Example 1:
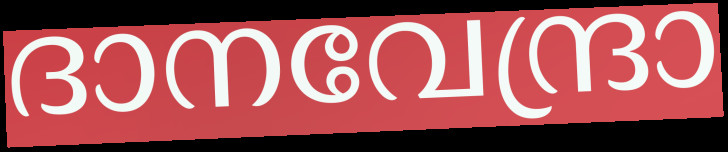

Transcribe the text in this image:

ദാനവേന്ദ്രാ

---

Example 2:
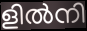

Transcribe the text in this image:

ളിൽനി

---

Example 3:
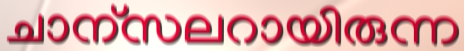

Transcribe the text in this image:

ചാന്സലറായിരുന്ന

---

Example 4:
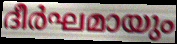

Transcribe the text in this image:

ദീർഘമായും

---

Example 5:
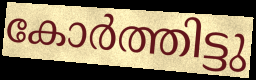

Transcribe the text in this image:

കോർത്തിട്ടു